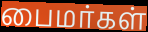
பைமர்கள்